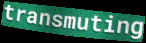
transmuting